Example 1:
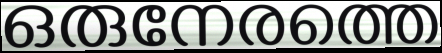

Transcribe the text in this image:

ഒരുനേരത്തെ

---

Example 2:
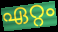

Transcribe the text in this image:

ഏറ്റം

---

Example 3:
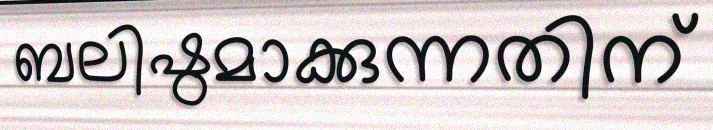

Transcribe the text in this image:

ബലിഷ്ഠമാക്കുന്നതിന്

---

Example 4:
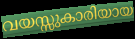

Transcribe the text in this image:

വയസ്സുകാരിയായ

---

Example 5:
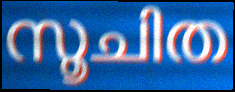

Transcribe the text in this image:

സൂചിത